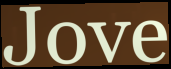
Jove